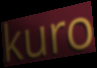
kuro